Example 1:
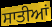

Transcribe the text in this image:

ਸਾਤੀਆਂ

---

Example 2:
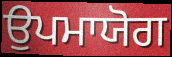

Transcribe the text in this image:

ਉਪਮਾਯੋਗ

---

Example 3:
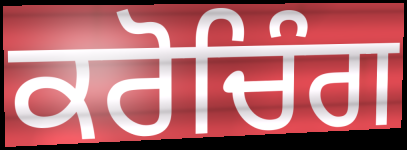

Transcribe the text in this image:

ਕਰੋਚਿੰਗ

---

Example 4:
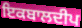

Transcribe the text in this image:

ਇਕਬਾਲਦੀਪ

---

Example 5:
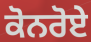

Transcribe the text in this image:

ਕੋਨਰੋਏ